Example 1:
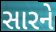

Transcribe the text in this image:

સારને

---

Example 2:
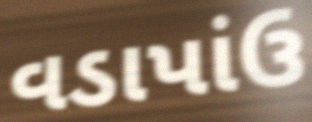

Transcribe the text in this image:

વડાપાંઉ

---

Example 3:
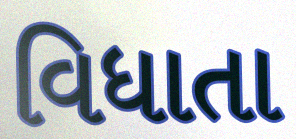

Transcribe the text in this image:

વિધાતા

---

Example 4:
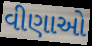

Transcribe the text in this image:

વીણાઓ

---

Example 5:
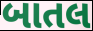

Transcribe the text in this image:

બાતલ